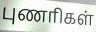
புணரிகள்